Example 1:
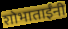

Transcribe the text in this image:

शोभाताईंनी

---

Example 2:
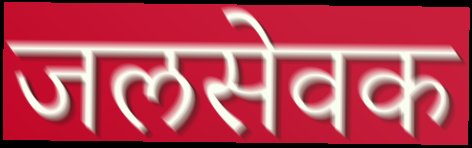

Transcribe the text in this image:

जलसेवक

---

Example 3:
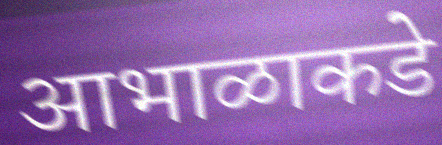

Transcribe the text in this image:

आभाळाकडे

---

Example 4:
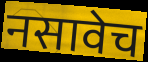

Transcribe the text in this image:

नसावेच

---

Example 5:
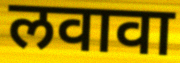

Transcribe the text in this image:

लवावा